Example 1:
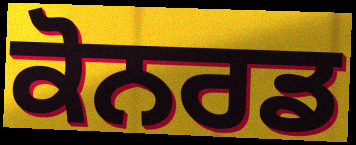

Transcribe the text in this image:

ਕੋਨਰਡ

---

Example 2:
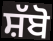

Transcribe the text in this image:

ਸ਼ੱਬੋ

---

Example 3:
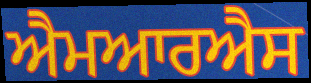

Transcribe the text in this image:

ਐਮਆਰਐਸ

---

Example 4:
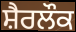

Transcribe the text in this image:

ਸ਼ੈਰਲੌਕ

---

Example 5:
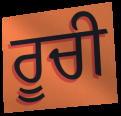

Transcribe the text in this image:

ਰੂਚੀ